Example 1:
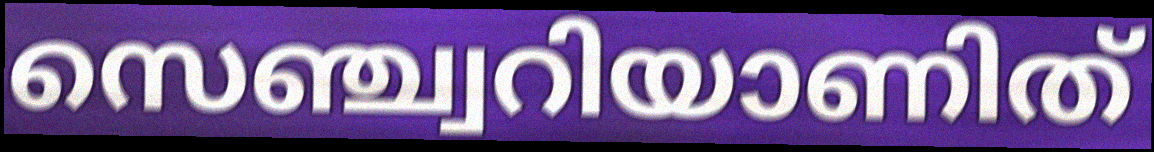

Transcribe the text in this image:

സെഞ്ച്വറിയാണിത്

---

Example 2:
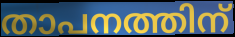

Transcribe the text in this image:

താപനത്തിന്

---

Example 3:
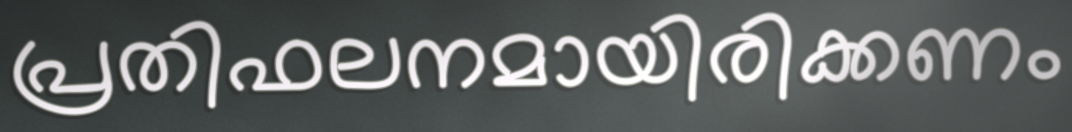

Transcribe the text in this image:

പ്രതിഫലനമായിരിക്കണം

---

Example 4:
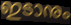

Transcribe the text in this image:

ഇടാനും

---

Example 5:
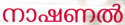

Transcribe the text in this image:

നാഷണൽ